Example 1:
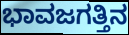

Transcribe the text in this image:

ಭಾವಜಗತ್ತಿನ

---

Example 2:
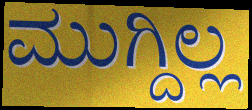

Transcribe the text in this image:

ಮುಗ್ದಿಲ್ಲ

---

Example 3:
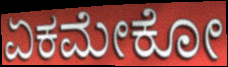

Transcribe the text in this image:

ಏಕಮೇಕೋ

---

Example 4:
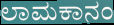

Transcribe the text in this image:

ಲಾಮಕಾನಂ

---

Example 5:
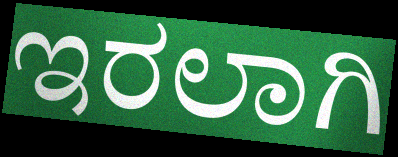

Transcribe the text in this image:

ಇರಲಾಗಿ